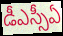
డీఎస్సీఏ